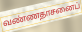
வண்ணதாசனைப்